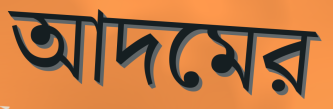
আদমের